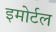
इमोर्टल